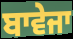
ਬਾਵੇਜਾ